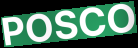
POSCO